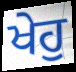
ਖੇਹੁ